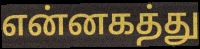
என்னகத்து